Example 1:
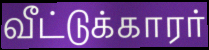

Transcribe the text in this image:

வீட்டுக்காரர்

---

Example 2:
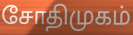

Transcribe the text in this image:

சோதிமுகம்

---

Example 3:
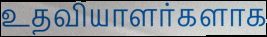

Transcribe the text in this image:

உதவியாளர்களாக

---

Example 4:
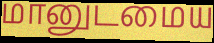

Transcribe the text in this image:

மானுடமைய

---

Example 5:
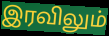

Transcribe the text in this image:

இரவிலும்